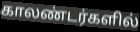
காலண்டர்களில்